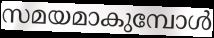
സമയമാകുമ്പോൾ